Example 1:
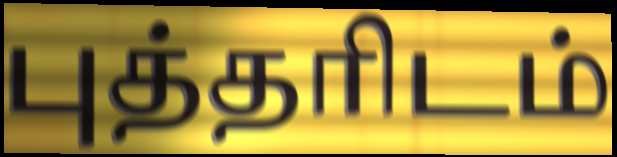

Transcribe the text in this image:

புத்தரிடம்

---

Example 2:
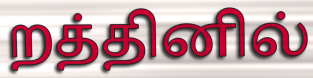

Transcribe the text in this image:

றத்தினில்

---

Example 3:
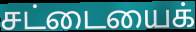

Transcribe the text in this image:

சட்டையைக்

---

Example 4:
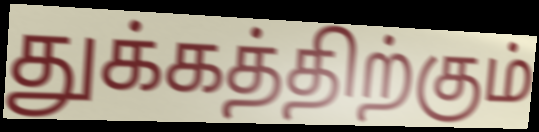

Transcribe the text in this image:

துக்கத்திற்கும்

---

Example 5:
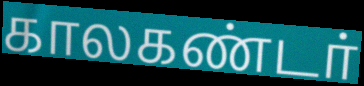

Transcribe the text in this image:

காலகண்டர்